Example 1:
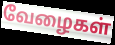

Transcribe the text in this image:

வேழைகள்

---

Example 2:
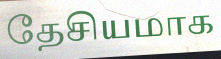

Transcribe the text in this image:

தேசியமாக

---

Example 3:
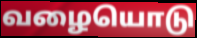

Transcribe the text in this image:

வழையொடு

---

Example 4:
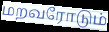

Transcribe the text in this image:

மறவரோடும்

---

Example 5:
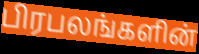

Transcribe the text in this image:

பிரபலங்களின்